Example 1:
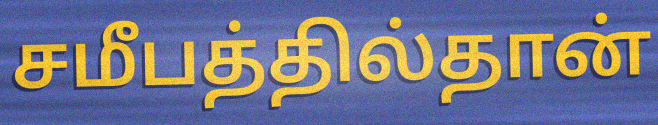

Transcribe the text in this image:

சமீபத்தில்தான்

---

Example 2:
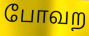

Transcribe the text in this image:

போவற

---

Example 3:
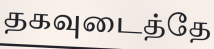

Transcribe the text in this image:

தகவுடைத்தே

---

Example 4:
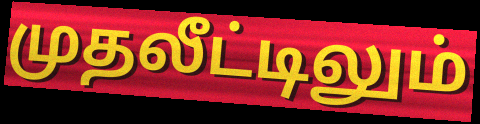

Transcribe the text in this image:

முதலீட்டிலும்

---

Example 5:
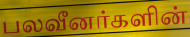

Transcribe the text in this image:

பலவீனர்களின்